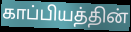
காப்பியத்தின்